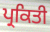
ਪ੍ਰਕਿਤੀ